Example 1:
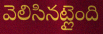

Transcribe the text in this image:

వెలిసినట్లైంది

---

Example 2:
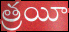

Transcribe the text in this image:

త్రయీ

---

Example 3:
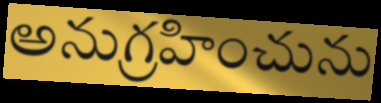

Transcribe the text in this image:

అనుగ్రహించును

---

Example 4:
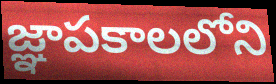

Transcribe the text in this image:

జ్ఞాపకాలలోని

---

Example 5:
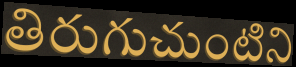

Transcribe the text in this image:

తిరుగుచుంటిని